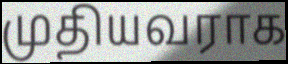
முதியவராக